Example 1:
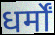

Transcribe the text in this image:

धर्मों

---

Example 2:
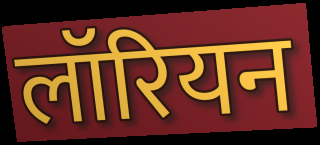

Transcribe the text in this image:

लॉरियन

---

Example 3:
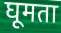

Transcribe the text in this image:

घूमता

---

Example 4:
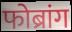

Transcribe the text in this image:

फोब्रांग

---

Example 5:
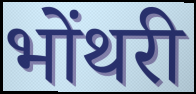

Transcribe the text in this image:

भोंथरी